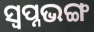
ସ୍ୱପ୍ନଭଙ୍ଗ